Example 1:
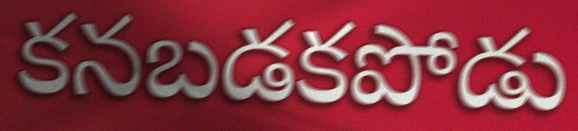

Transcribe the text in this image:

కనబడకపోడు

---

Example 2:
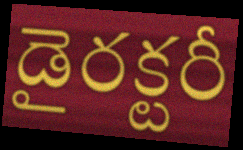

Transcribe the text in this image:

డైరక్టరీ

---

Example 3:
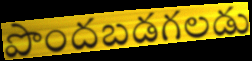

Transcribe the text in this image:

పొందబడగలడు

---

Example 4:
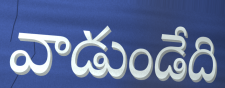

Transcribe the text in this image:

వాడుండేది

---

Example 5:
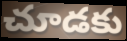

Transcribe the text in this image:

చూడకు